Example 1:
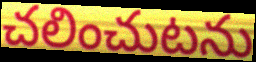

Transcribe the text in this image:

చలించుటను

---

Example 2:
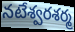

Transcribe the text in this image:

నటేశ్వరశర్మ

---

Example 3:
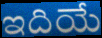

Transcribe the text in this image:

ఇదియే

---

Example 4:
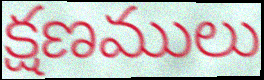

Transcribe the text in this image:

క్షణములు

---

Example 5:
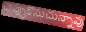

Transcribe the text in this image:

చెప్పుకొనుచున్నావు